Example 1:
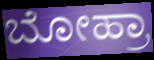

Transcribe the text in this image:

ಬೋಹ್ರಾ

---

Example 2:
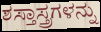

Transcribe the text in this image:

ಶಸ್ತಾಸ್ತ್ರಗಳನ್ನು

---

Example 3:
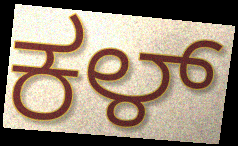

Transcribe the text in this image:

ಕಳ್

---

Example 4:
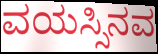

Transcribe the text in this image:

ವಯಸ್ಸಿನವ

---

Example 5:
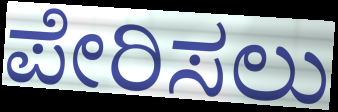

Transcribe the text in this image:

ಪೇರಿಸಲು